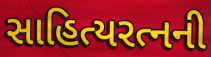
સાહિત્યરત્નની